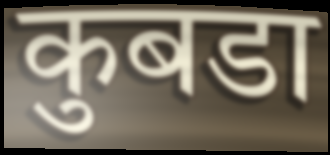
कुबडा